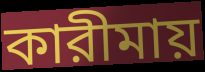
কারীমায়